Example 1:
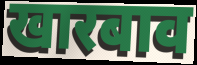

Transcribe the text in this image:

खारबाव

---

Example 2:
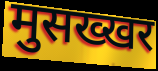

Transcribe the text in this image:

मुसख्खर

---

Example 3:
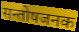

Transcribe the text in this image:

सन्तोषजनक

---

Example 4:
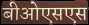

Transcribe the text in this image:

बीओएसएस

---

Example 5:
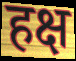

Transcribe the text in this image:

हक्ष